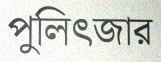
পুলিৎজার